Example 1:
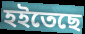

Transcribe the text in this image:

হইতেছে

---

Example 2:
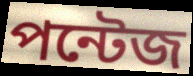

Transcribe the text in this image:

পন্টেজ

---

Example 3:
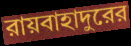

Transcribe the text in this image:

রায়বাহাদুরের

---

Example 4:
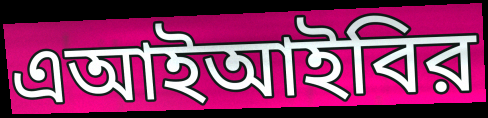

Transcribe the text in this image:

এআইআইবির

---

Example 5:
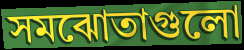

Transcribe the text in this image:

সমঝোতাগুলো